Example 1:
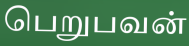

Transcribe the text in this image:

பெறுபவன்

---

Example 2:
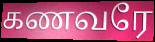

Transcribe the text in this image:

கணவரே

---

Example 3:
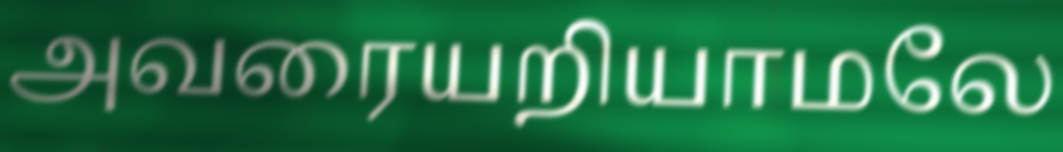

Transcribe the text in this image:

அவரையறியாமலே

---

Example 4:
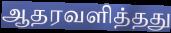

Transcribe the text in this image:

ஆதரவளித்தது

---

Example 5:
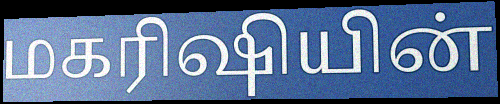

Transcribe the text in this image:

மகரிஷியின்